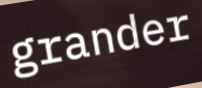
grander